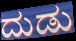
ದುಡು